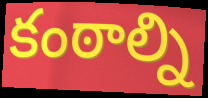
కంఠాల్ని